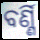
ବର୍ଣ୍ଣି